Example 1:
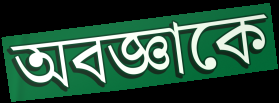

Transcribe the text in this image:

অবজ্ঞাকে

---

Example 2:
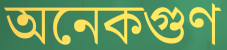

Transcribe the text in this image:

অনেকগুণ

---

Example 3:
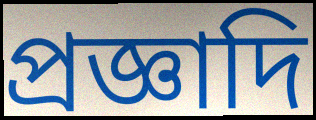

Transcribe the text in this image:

প্রজ্ঞাদি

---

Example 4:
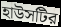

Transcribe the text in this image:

হাউসটির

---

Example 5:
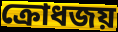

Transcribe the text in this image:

ক্রোধজয়